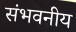
संभवनीय